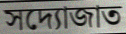
সদ্যোজাত